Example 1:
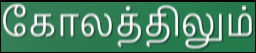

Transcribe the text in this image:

கோலத்திலும்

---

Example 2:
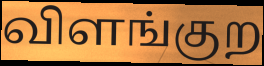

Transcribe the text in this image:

விளங்குற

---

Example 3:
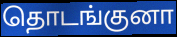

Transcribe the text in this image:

தொடங்குனா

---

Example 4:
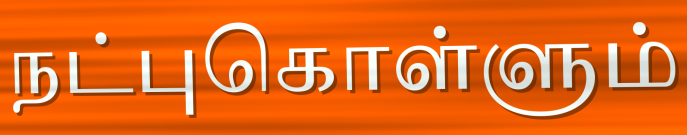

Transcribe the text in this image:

நட்புகொள்ளும்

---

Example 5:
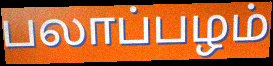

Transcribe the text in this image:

பலாப்பழம்